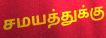
சமயத்துக்கு